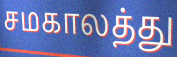
சமகாலத்து